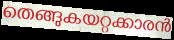
തെങ്ങുകയറ്റക്കാരൻ